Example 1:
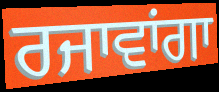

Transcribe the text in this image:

ਰਜਾਵਾਂਗਾ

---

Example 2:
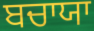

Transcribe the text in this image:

ਬਚਾਯਾ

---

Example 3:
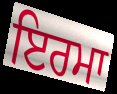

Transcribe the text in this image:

ਇਰਮਾ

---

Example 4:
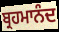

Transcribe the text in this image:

ਬ੍ਰਹਮਾਨੰਦ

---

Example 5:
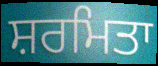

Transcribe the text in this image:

ਸ਼ਰਮਿਤਾ